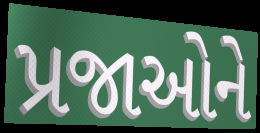
પ્રજાઓને